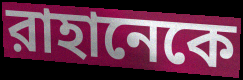
রাহানেকে